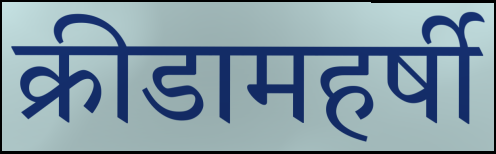
क्रीडामहर्षी